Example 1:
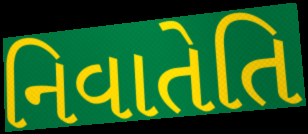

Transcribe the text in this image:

નિવાતેતિ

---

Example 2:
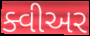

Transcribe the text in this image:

ક્વીઅર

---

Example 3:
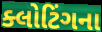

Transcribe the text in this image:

ક્લોટિંગના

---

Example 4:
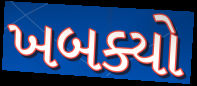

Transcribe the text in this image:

ખબક્યો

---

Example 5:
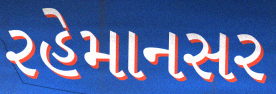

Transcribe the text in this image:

રહેમાનસર